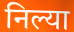
निल्या